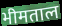
भीमताल